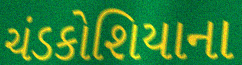
ચંડકોશિયાના